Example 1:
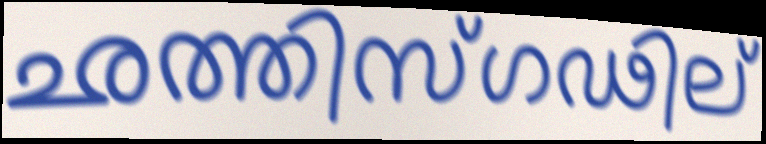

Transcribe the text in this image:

ഛത്തിസ്ഗഢില്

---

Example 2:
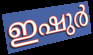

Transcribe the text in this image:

ഇഷുർ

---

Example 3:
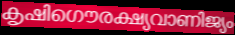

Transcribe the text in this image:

കൃഷിഗൌരക്ഷ്യവാണിജ്യം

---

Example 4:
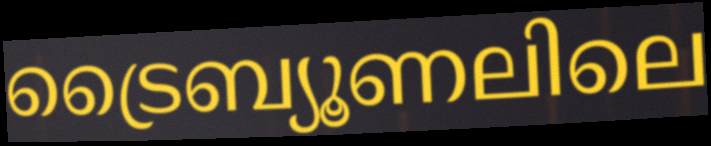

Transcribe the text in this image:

ട്രൈബ്യൂണലിലെ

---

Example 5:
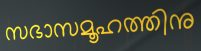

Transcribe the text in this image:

സഭാസമൂഹത്തിനു